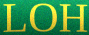
LOH